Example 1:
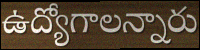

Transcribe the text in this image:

ఉద్యోగాలన్నారు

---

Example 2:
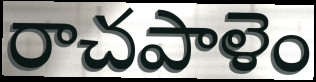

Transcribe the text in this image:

రాచపాళెం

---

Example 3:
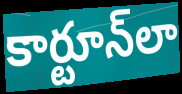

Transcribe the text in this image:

కార్టూన్‌లా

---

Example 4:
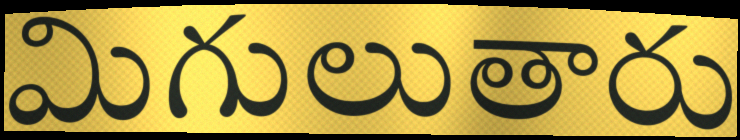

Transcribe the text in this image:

మిగులుతారు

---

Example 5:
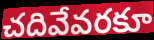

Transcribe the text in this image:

చదివేవరకూ